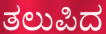
ತಲುಪಿದ